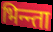
भिन्न्ता